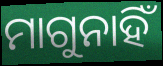
ମାଗୁନାହିଁ